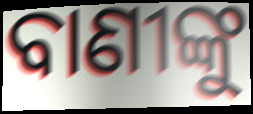
ବାଣୀଙ୍କୁ